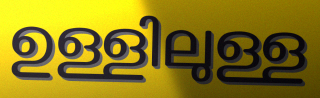
ഉള്ളിലുള്ള